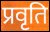
प्रवृति